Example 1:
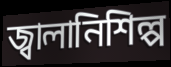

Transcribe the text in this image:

জ্বালানিশিল্প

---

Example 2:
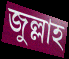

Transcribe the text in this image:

জুল্লাহ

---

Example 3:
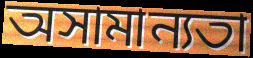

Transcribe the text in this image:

অসামান্যতা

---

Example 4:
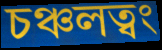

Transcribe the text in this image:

চঞ্চলত্বং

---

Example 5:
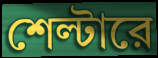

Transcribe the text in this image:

শেল্টারে